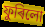
ফুৰিলো